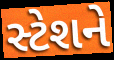
સ્ટેશને